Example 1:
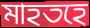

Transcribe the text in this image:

মাহতহে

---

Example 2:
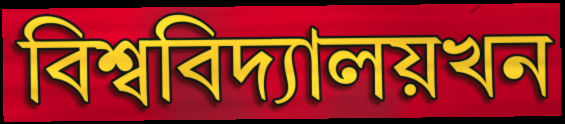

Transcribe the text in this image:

বিশ্ববিদ্যালয়খন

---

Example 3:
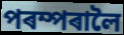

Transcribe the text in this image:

পৰম্পৰালৈ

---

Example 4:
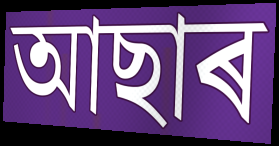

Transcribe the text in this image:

আছাৰ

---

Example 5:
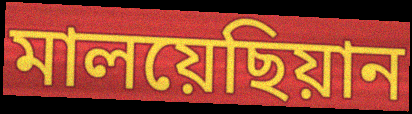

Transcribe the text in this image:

মালয়েছিয়ান